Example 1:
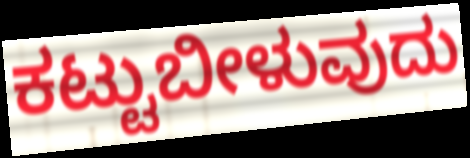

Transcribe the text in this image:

ಕಟ್ಟುಬೀಳುವುದು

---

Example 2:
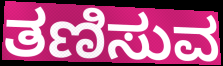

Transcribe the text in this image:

ತಣಿಸುವ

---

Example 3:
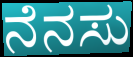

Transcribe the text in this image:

ನೆನಸು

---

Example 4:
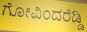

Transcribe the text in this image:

ಗೋವಿಂದರೆಡ್ಡಿ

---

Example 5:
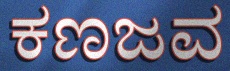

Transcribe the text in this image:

ಕಣಜವ